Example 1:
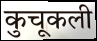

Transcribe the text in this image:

कुचूकली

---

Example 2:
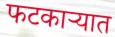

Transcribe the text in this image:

फटकाऱ्यात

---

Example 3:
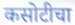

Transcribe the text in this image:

कसोटीचा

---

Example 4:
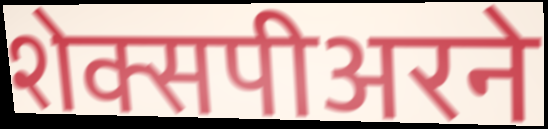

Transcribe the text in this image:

शेक्सपीअरने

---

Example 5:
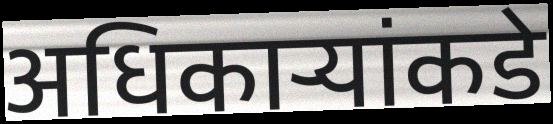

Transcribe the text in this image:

अधिकार्‍यांकडे